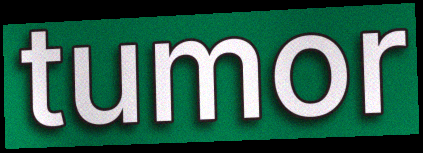
tumor